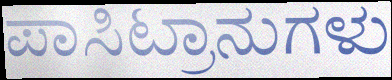
ಪಾಸಿಟ್ರಾನುಗಳು